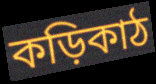
কড়িকাঠ